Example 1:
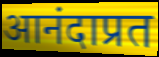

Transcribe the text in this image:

आनंदाप्रत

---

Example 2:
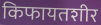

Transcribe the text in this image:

किफायतशीर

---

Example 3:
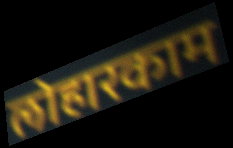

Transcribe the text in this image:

लोहारकाम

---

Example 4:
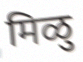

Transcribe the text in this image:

मिळु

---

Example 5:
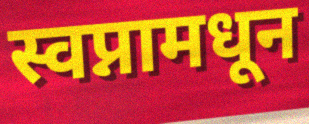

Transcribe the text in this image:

स्वप्नामधून